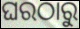
ଘରଠାରୁ